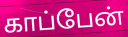
காப்பேன்